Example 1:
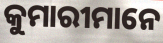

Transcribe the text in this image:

କୁମାରୀମାନେ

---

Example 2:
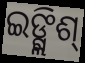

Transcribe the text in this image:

ଇଙ୍ଗ୍ଲିଶ୍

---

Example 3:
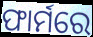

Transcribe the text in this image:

ଫାର୍ମରେ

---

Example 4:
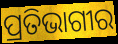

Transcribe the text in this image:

ପ୍ରତିଭାଗୀର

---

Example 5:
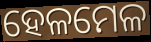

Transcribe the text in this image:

ହେଳମେଳ